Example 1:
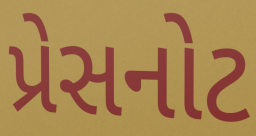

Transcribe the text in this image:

પ્રેસનોટ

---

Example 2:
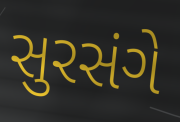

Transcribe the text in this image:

સુરસંગે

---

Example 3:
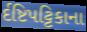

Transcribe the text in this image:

ર્દષ્ટિપટ્ટિકાના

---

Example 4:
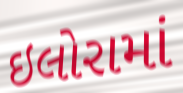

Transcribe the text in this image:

ઇલોરામાં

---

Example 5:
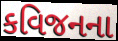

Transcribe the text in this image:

કવિજનના